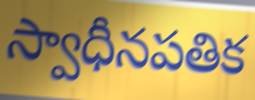
స్వాధీనపతిక